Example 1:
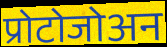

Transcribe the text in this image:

प्रोटोजोअन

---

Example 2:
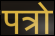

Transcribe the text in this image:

पत्रो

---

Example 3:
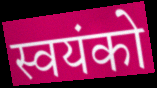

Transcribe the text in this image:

स्वयंको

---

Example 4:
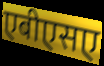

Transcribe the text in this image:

एबीएसए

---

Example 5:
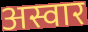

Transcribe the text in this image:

अस्वार